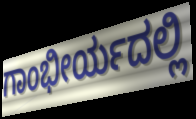
ಗಾಂಭೀರ್ಯದಲ್ಲಿ